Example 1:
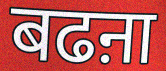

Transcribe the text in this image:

बढऩा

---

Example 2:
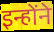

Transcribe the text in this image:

इन्‍होंने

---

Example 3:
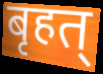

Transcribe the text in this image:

बृहत्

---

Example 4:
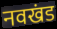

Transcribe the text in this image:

नवखंड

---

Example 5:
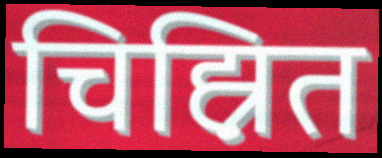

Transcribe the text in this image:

चिह्नित